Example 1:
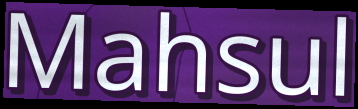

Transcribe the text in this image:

Mahsul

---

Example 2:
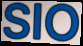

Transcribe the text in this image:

SIO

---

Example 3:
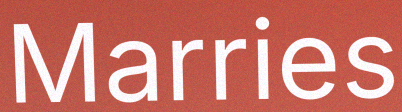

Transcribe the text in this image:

Marries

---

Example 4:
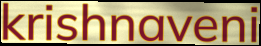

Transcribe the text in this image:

krishnaveni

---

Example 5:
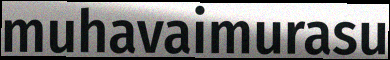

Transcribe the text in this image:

muhavaimurasu